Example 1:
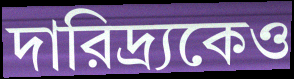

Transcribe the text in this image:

দারিদ্র্যকেও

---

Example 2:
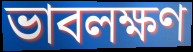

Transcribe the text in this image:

ভাবলক্ষণ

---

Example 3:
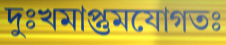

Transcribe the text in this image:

দুঃখমাপ্তুমযোগতঃ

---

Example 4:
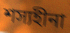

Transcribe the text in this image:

শস্যহীনা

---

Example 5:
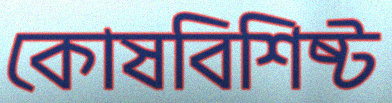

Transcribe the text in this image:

কোষবিশিষ্ট